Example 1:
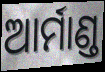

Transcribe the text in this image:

ଆର୍ମାଣ୍ଡ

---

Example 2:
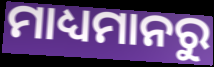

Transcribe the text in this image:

ମାଧ୍ୟମାନରୁ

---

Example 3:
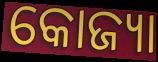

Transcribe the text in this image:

କୋଜ୍ୟା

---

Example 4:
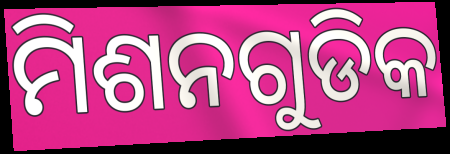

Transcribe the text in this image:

ମିଶନଗୁଡିକ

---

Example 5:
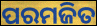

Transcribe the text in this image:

ପରମଜିତ